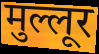
मुल्लूर